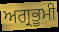
ਅਗ੍ਰਭੂਮੀ